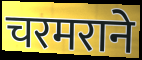
चरमराने